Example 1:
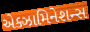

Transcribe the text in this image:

એક્ઝામિનેશન્સ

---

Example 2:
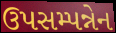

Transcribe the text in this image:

ઉપસમ્પન્નેન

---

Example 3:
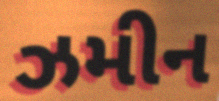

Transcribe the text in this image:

ઝમીન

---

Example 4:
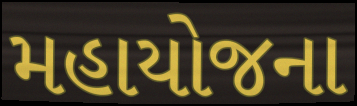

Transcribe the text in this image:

મહાયોજના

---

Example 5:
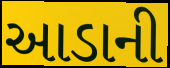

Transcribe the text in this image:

આડાની